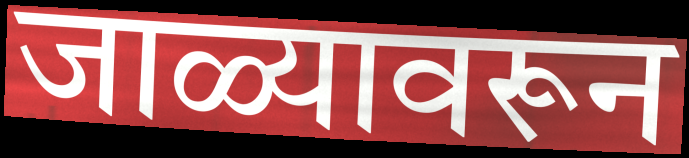
जाळ्यावरून